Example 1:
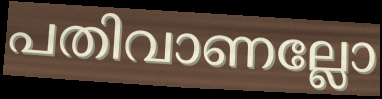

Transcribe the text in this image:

പതിവാണല്ലോ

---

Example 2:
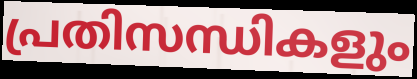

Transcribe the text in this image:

പ്രതിസന്ധികളും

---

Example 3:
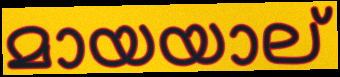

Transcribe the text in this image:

മായയാല്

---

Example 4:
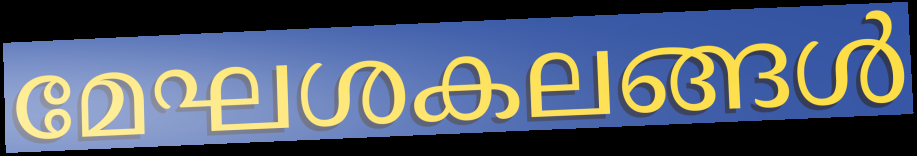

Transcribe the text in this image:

മേഘശകലങ്ങൾ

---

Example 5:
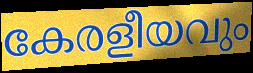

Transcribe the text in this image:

കേരളീയവും